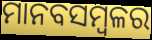
ମାନବସମ୍ବଳର